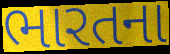
ભારતના